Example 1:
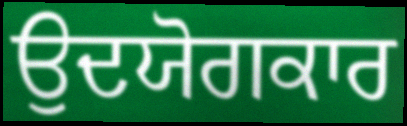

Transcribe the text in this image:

ਉਦਯੋਗਕਾਰ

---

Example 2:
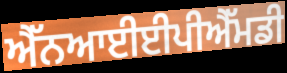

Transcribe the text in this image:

ਐੱਨਆਈਈਪੀਐੱਮਡੀ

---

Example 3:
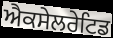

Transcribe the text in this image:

ਐਕਸੇਲਰੇਟਿਡ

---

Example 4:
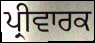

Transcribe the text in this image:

ਪ੍ਰੀਵਾਰਕ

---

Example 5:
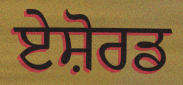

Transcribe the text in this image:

ਏਸ਼ੋਰਡ